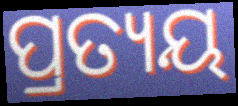
ପ୍ରତ୍ଯୟ